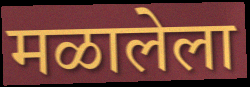
मळालेला